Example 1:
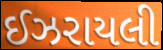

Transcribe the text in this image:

ઈઝરાયલી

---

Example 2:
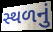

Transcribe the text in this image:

સ્થળનું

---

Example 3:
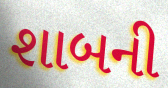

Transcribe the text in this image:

શાબની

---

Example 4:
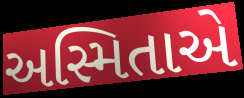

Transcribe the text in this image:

અસ્મિતાએ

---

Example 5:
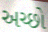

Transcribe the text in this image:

અચ્છો